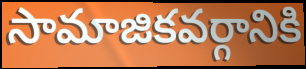
సామాజికవర్గానికి